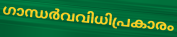
ഗാന്ധർവവിധിപ്രകാരം